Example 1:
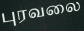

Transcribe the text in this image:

புரவலை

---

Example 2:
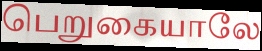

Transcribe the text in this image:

பெறுகையாலே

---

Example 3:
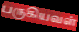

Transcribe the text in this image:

பருகியவள்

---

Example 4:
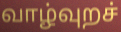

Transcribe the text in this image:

வாழ்வுறச்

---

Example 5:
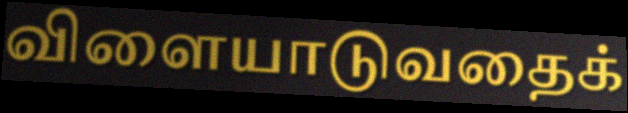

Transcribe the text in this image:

விளையாடுவதைக்